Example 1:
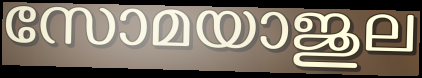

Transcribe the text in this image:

സോമയാജുല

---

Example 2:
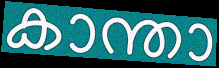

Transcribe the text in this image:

കാന്താ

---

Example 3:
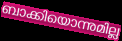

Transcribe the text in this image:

ബാക്കിയൊന്നുമില്ല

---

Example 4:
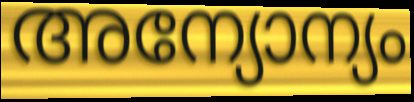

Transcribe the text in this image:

അന്യോന്യം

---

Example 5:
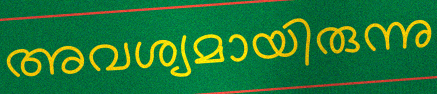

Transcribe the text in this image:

അവശ്യമായിരുന്നു